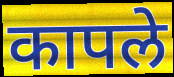
कापले